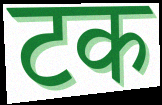
टक